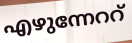
എഴുന്നേററ്